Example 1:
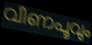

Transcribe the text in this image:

വീണപൂവും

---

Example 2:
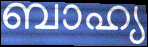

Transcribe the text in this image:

ബാഹ്യ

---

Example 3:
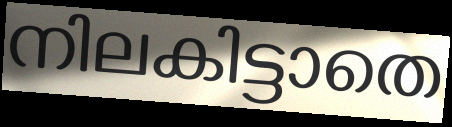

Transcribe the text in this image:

നിലകിട്ടാതെ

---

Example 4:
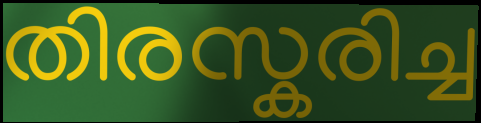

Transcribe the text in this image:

തിരസ്കരിച്ച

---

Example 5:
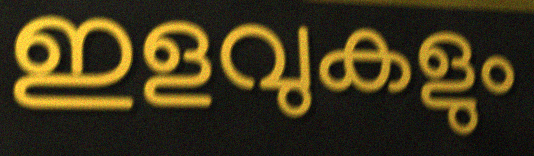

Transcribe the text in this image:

ഇളവുകളും